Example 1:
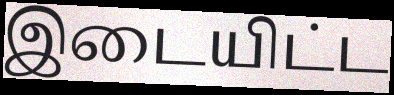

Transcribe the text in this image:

இடையிட்ட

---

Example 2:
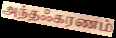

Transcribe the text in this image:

அந்தஃகரணம்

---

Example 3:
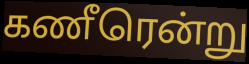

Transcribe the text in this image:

கணீரென்று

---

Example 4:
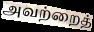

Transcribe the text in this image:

அவற்றைத்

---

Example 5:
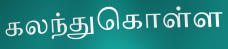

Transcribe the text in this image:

கலந்துகொள்ள